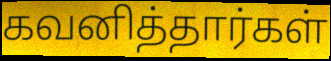
கவனித்தார்கள்